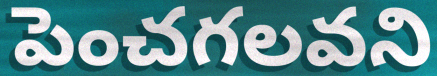
పెంచగలవని